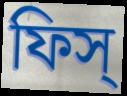
ফিস্